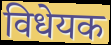
विधेयक